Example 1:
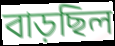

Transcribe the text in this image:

বাড়ছিল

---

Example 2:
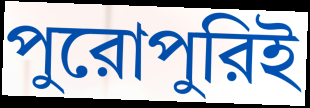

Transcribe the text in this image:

পুরোপুরিই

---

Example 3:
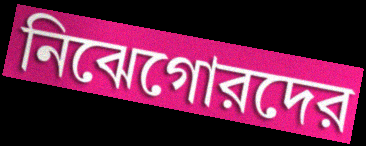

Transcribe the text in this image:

নিঝেগোরদের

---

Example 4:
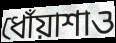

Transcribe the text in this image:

ধোঁয়াশাও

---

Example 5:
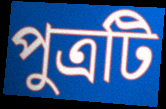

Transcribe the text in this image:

পুত্রটি